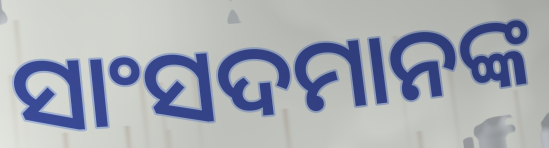
ସାଂସଦମାନଙ୍କ